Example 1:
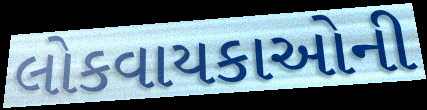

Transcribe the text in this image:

લોકવાયકાઓની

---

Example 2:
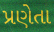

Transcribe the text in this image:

પ્રણેતા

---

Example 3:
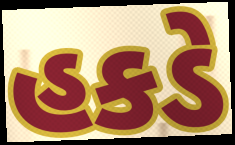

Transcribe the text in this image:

હકડે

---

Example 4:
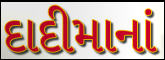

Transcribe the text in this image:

દાદીમાનાં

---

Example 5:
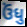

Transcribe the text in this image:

ઉંધુ